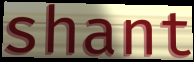
shant